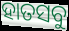
ହାତସବୁ